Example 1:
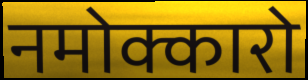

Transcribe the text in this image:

नमोक्कारो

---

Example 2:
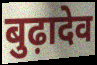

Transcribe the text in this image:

बुढ़ादेव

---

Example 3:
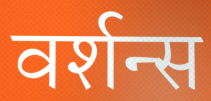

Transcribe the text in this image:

वर्शन्स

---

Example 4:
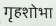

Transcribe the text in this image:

गृहशोभा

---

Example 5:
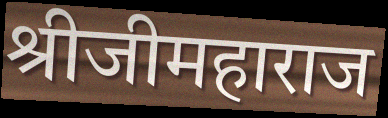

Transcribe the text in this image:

श्रीजीमहाराज